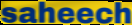
saheech